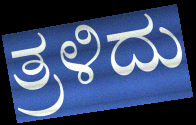
ತ್ರಳಿದು